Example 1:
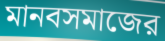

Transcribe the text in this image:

মানবসমাজের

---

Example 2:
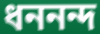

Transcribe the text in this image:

ধননন্দ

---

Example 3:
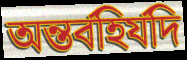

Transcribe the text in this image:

অন্তর্বহির্যদি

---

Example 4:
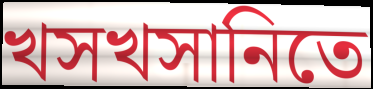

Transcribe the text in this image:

খসখসানিতে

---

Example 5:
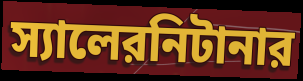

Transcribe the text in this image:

স্যালেরনিটানার